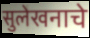
सुलेखनाचे